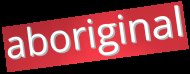
aboriginal